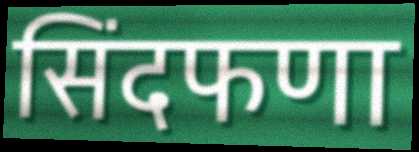
सिंदफणा